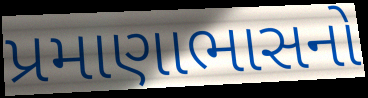
પ્રમાણાભાસનો